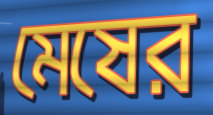
মেষের